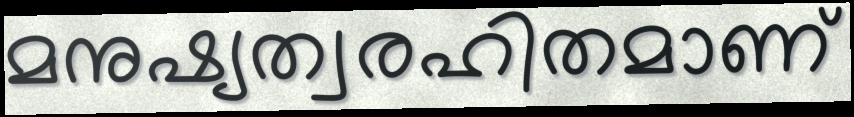
മനുഷ്യത്വരഹിതമാണ്